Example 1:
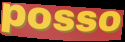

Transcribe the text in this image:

posso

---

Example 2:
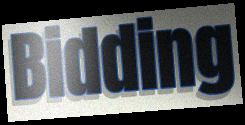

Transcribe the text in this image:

Bidding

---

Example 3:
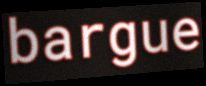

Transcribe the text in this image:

bargue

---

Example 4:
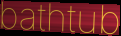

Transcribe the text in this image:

bathtub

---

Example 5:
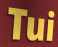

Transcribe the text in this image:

Tui